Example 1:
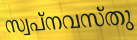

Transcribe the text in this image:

സ്വപ്നവസ്തു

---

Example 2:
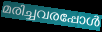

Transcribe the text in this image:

മരിച്ചവരപ്പോൾ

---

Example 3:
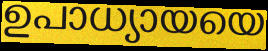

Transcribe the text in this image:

ഉപാധ്യായയെ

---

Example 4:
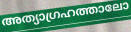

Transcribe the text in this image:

അത്യാഗ്രഹത്താലോ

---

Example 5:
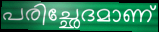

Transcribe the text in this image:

പരിച്ഛേദമാണ്